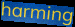
harming